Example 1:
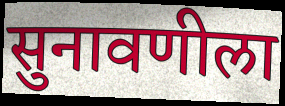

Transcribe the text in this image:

सुनावणीला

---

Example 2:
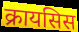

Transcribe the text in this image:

क्रायसिस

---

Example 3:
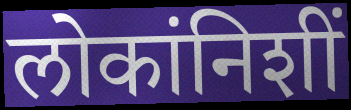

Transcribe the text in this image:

लोकांनिशीं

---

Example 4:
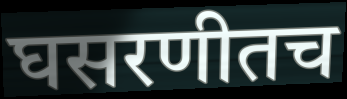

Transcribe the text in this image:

घसरणीतच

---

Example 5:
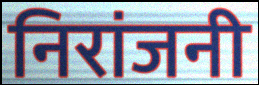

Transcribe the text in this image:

निरांजनी